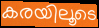
കരയിലൂടെ